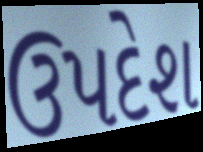
ઉપદેશ